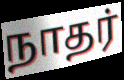
நாதர்